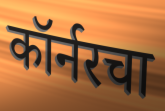
कॉर्नरचा